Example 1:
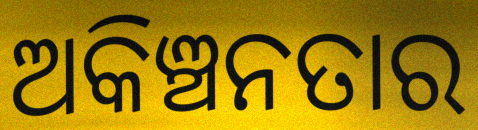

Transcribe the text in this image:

ଅକିଞ୍ଚନତାର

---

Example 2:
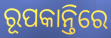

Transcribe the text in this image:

ରୂପକାନ୍ତିରେ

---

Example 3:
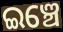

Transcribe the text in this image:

ଇଞ୍ଚେ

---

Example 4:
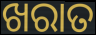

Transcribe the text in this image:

ଖରାତ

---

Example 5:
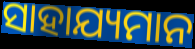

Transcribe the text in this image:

ସାହାଯ୍ୟମାନ